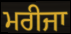
ਮਰੀਜਾ